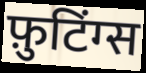
फ़ुटिंग्स